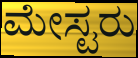
ಮೇಸ್ಟರು